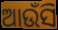
ଆଉଁସି